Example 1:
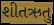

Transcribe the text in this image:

શીતઋતુ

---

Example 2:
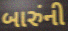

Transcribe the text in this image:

બારુંની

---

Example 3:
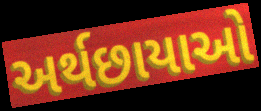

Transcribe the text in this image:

અર્થછાયાઓ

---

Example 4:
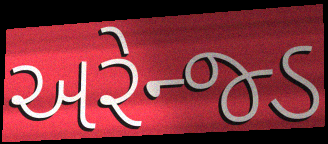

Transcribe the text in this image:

અરેન્જ્ડ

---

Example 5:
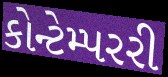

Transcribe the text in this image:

કોન્ટેમ્પરરી